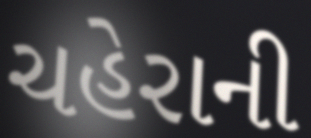
ચહેરાની